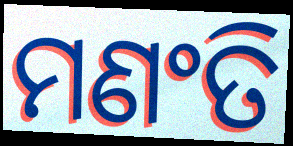
ମଣଂତି